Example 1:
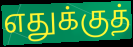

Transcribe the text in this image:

எதுக்குத்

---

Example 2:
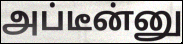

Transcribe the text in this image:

அப்டீன்னு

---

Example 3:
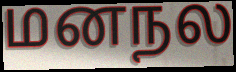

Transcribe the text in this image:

மனநல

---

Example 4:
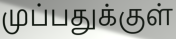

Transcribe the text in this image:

முப்பதுக்குள்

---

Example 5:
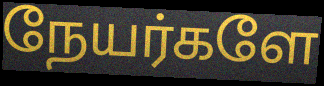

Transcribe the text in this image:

நேயர்களே